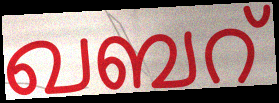
ഖബറ്